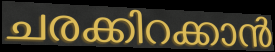
ചരക്കിറക്കാൻ